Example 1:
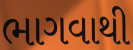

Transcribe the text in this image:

ભાગવાથી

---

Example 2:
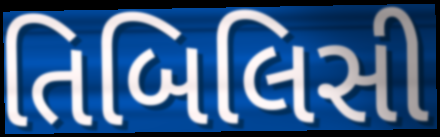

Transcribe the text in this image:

તિબિલિસી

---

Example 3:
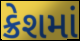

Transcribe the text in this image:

ક્રેશમાં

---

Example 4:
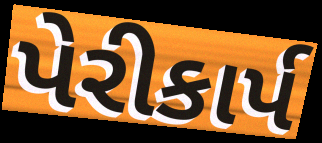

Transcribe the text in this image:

પેરીકાર્પ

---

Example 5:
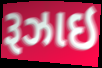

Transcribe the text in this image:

રૂઝાઇ